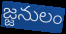
జ్జనులం